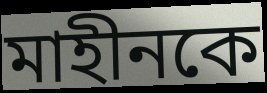
মাহীনকে